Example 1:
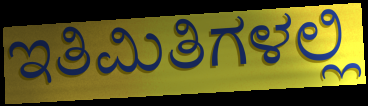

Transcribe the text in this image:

ಇತಿಮಿತಿಗಳಲ್ಲಿ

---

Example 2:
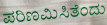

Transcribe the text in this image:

ಪರಿಣಮಿಸಿತೆಂದು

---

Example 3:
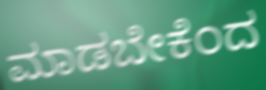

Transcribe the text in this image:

ಮಾಡಬೇಕೆಂದ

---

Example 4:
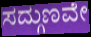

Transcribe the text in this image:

ಸದ್ಗುಣವೇ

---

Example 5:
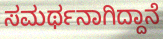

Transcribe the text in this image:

ಸಮರ್ಥನಾಗಿದ್ದಾನೆ